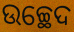
ଉଚ୍ଛେଦ